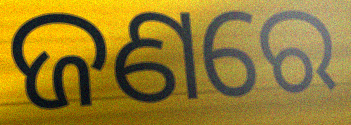
ଜଣରେ